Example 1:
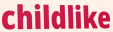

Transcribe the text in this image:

childlike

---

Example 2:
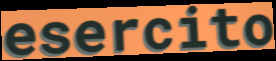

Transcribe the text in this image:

esercito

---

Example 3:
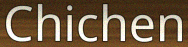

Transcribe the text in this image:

Chichen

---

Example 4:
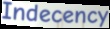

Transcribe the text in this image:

Indecency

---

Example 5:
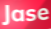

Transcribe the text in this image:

Jase